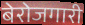
बेरोजगारी